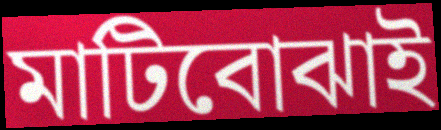
মাটিবোঝাই